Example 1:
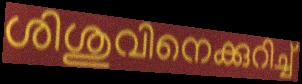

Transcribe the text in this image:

ശിശുവിനെക്കുറിച്ച്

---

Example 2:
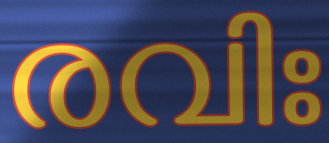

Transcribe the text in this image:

രവിഃ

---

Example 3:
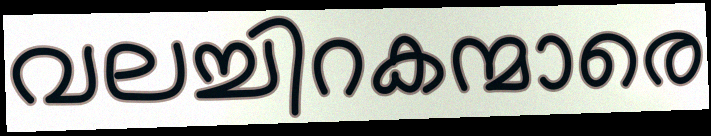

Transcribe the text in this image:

വലച്ചിറകന്മാരെ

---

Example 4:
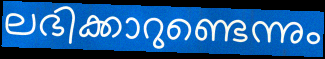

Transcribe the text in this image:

ലഭിക്കാറുണ്ടെന്നും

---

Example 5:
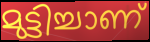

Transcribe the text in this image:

മുട്ടിച്ചാണ്